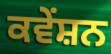
ਕਵੇਂਸ਼ਨ